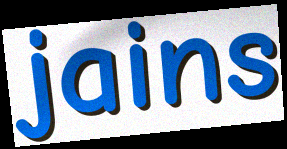
jains